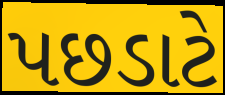
પછડાટે